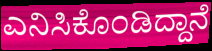
ಎನಿಸಿಕೊಂಡಿದ್ದಾನೆ